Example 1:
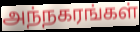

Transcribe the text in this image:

அந்நகரங்கள்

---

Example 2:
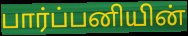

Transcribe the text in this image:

பார்ப்பனியின்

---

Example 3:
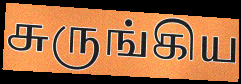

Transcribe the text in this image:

சுருங்கிய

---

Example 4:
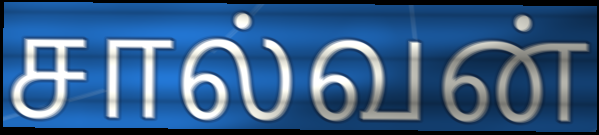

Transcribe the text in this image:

சால்வன்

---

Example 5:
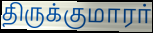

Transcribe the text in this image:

திருக்குமாரர்